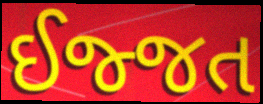
ઈજ્જત